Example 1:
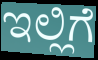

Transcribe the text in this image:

ಇಲ್ಲಿಗೆ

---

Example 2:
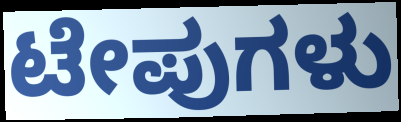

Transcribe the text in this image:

ಟೇಪುಗಳು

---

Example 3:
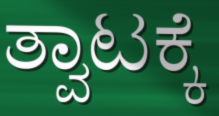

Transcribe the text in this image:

ತ್ವಾಟಕ್ಕೆ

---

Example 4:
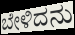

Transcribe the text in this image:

ಬೇಳಿದನು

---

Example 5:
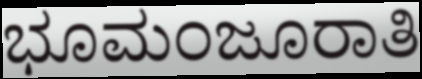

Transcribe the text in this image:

ಭೂಮಂಜೂರಾತಿ